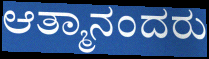
ಆತ್ಮಾನಂದರು